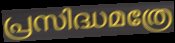
പ്രസിദ്ധമത്രേ